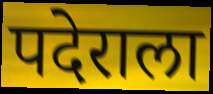
पदेराला